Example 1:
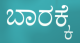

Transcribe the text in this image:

ಬಾರಕ್ಕೆ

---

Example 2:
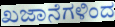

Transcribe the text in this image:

ಖಜಾನೆಗಳಿಂದ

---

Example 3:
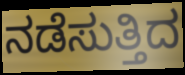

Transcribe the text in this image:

ನಡೆಸುತ್ತಿದ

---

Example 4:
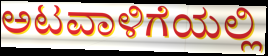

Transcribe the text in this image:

ಅಟವಾಳಿಗೆಯಲ್ಲಿ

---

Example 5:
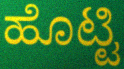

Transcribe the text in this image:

ಹೊಟ್ಟಿ